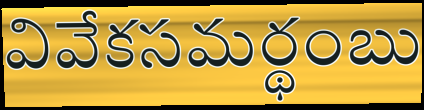
వివేకసమర్థంబు